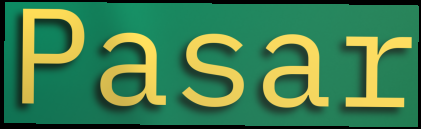
Pasar